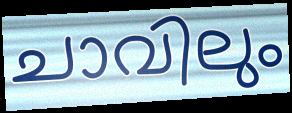
ചാവിലും